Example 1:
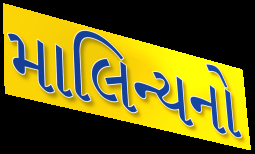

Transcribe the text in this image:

માલિન્યનો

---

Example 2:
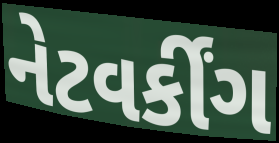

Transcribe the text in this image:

નેટવર્કીંગ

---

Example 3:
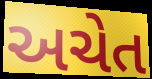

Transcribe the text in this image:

અચેત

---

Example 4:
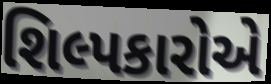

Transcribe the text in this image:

શિલ્પકારોએ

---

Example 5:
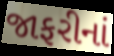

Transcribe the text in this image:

જાફરીનાં